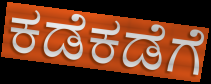
ಕಡೆಕಡೆಗೆ